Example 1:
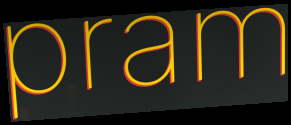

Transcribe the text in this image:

pram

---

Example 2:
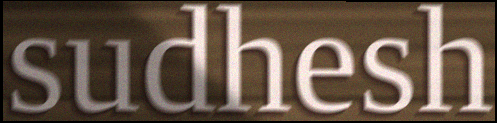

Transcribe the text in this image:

sudhesh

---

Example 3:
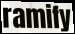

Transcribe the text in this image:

ramify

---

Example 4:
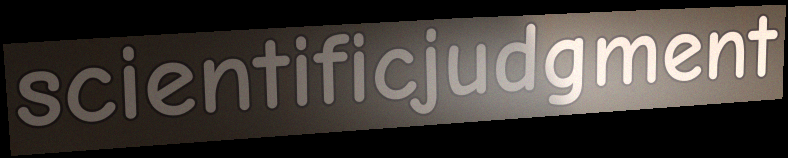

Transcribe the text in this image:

scientificjudgment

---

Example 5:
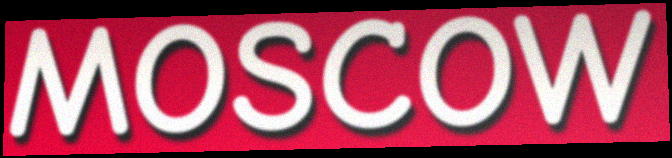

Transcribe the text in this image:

MOSCOW